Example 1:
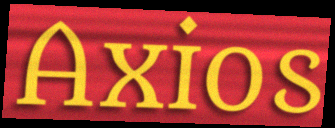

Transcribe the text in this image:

Axios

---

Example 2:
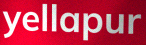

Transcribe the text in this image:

yellapur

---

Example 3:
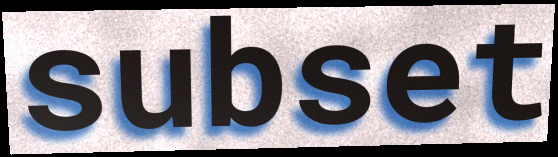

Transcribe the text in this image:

subset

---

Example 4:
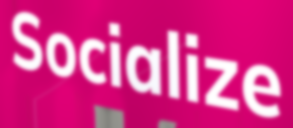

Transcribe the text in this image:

Socialize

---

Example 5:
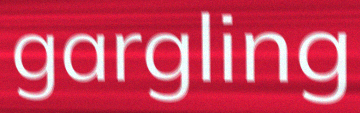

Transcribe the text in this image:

gargling